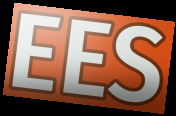
EES